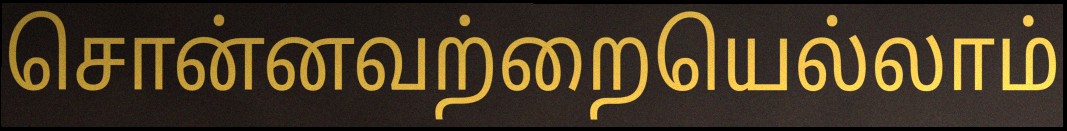
சொன்னவற்றையெல்லாம்